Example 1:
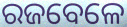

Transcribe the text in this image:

ରଜବେଳେ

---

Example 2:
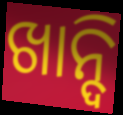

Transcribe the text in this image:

ଖାନ୍ଦି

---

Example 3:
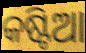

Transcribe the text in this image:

କଷ୍ଟିଆ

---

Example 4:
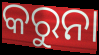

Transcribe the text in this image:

କରୁନା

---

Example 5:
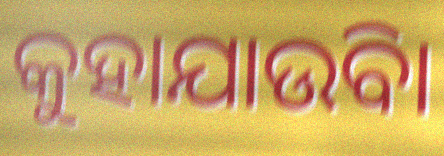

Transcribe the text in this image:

କୁହାଯାଉିବା